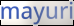
mayuri